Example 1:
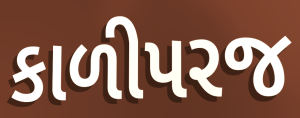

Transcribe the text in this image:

કાળીપરજ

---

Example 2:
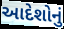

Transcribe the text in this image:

આદેશોનું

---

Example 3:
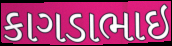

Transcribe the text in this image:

કાગડાભાઇ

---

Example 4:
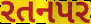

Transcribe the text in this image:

રતનપર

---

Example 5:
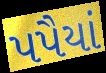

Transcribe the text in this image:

પપૈયાં